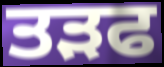
ਤੜਫ